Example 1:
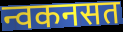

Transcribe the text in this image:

न्वकनसत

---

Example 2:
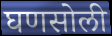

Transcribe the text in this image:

घणसोली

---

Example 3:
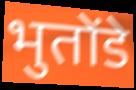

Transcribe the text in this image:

भुतोंडे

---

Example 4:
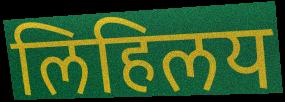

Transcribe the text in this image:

लिहिलय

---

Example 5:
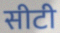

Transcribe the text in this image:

सीटी